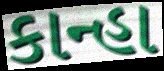
કાન્હા